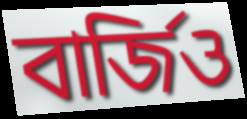
বার্জিও